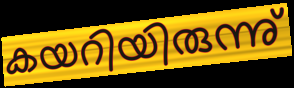
കയറിയിരുന്നു്